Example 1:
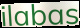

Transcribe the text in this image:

ilabas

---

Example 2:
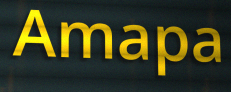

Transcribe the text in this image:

Amapa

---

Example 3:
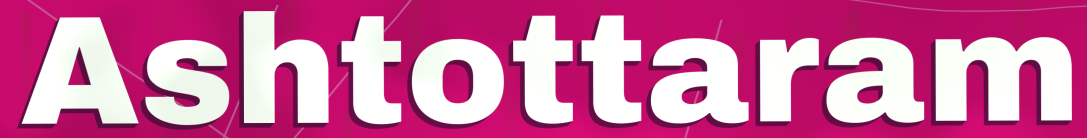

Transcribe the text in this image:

Ashtottaram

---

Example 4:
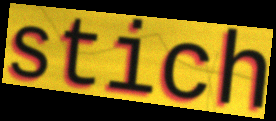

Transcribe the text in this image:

stich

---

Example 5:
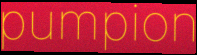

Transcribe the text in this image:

pumpion